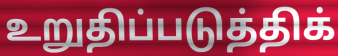
உறுதிப்படுத்திக்